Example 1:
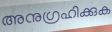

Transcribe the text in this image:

അനുഗ്രഹിക്കുക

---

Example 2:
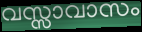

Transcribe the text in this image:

വസ്സാവാസം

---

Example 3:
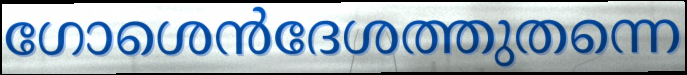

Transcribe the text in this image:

ഗോശെൻദേശത്തുതന്നെ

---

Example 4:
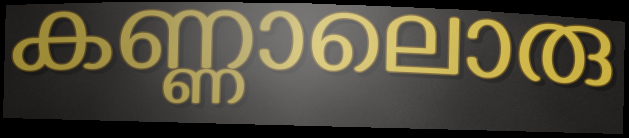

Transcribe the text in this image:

കണ്ണാലൊരു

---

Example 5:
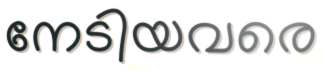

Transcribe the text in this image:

നേടിയവരെ